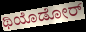
ಥಿಯೊಡೋರ್